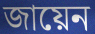
জায়েন